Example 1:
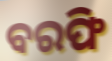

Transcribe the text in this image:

ବରଫି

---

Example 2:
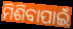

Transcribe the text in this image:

ମିଶିବାପାଇଁ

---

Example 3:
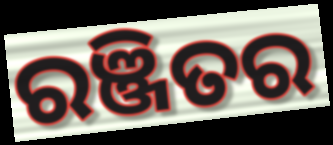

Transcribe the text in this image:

ରଞ୍ଜିତର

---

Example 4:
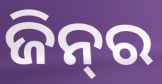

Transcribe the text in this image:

ଜିନ୍‌ର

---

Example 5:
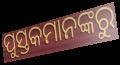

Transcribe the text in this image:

ପୁସ୍ତକମାନଙ୍କରୁ